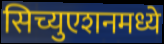
सिच्युएशनमध्ये